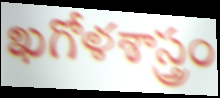
ఖగోళశాస్త్రం